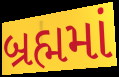
બ્રહ્મમાં